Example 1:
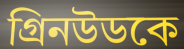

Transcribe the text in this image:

গ্রিনউডকে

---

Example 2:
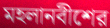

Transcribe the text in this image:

মহলানবীশের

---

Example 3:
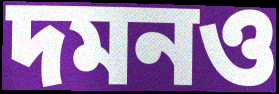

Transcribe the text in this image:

দমনও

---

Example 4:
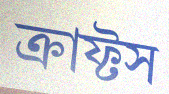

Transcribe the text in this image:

ক্রাফ্টস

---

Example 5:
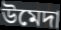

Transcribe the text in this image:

উমেদা